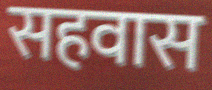
सहवास